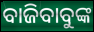
ବାଜିବାବୁଙ୍କ